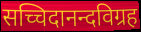
सच्चिदानन्दविग्रह